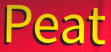
Peat